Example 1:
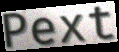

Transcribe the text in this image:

Pext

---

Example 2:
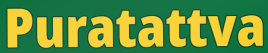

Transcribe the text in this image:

Puratattva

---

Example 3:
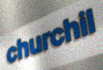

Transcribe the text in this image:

churchil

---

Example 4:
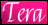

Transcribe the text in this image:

Tera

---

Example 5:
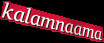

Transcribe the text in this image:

kalamnaama